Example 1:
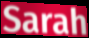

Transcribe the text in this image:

Sarah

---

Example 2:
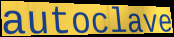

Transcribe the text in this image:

autoclave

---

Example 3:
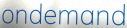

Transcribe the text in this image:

ondemand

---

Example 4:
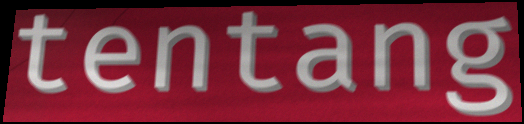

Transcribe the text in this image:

tentang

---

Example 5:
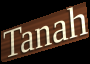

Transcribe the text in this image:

Tanah